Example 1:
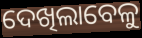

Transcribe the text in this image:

ଦେଖିଲାବେଳୁ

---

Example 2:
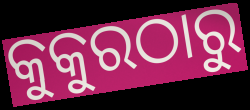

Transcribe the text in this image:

କୁକୁରଠାରୁ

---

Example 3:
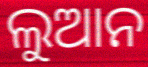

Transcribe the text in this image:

ଲୁଆନ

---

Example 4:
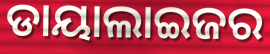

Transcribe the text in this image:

ଡାୟାଲାଇଜର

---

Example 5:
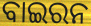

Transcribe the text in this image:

ବାଇରନ